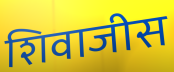
शिवाजीस